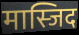
मास्जिद